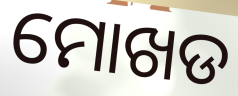
ମୋଖଡ